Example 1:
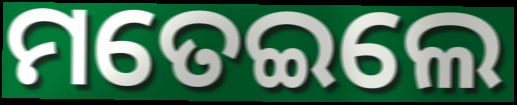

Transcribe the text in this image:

ମତେଇଲେ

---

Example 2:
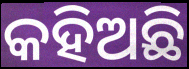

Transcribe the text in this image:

କହିଅଛି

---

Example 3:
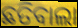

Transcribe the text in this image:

ଛତିବାଲା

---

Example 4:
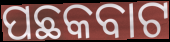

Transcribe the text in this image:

ପଛକବାଟ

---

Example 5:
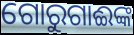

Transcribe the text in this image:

ଗୋରୁଗାଈଙ୍କ